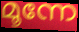
മൂന്നേ